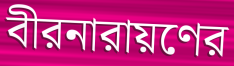
বীরনারায়ণের